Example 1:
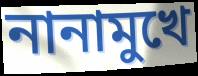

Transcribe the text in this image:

নানামুখে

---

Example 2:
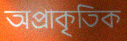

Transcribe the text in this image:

অপ্রাকৃতিক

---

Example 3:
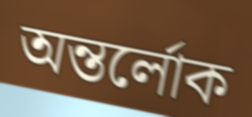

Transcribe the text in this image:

অন্তর্লোক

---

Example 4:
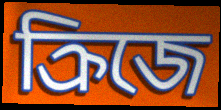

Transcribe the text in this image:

ক্রিজে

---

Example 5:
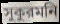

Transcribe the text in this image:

সুকুরমনি